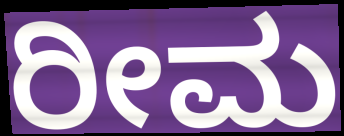
ರೀಮ